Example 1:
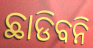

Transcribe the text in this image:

ଛାଡିବନି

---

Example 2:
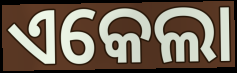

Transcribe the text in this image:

ଏକେଲା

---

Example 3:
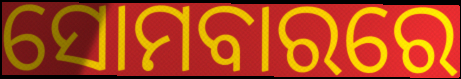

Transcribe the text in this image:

ସୋମବାରରେ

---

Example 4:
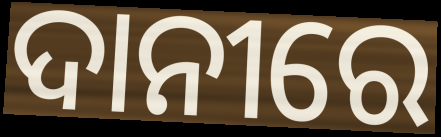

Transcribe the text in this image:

ଦାନୀରେ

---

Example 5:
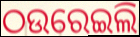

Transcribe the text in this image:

ଠଉରେଇଲି